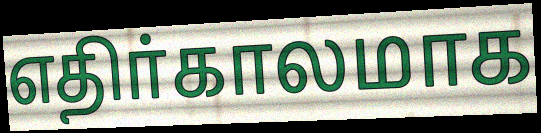
எதிர்காலமாக